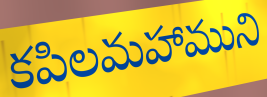
కపిలమహాముని